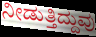
ನೀಡುತ್ತಿದ್ದುವು